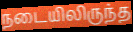
நடையிலிருந்த